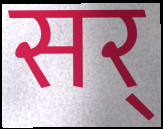
सर्